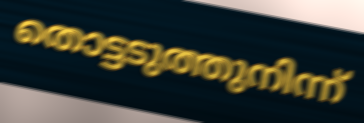
തൊട്ടടുത്തുനിന്ന്